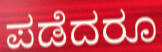
ಪಡೆದರೂ